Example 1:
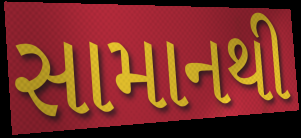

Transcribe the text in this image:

સામાનથી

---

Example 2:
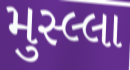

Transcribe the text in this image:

મુસ્લ્લા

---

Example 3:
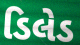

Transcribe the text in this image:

ડિલેડ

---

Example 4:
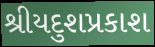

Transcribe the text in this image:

શ્રીયદુશપ્રકાશ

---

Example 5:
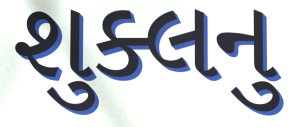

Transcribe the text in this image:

શુક્લનુ